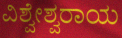
ವಿಶ್ವೇಶ್ವರಾಯ